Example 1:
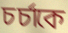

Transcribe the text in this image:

চর্চাকে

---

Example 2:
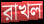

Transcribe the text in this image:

রাখল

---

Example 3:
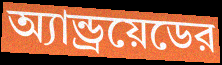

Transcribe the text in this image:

অ্যান্ড্রয়েডের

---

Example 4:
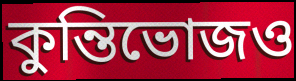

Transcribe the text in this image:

কুন্তিভোজও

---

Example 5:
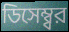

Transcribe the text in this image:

ডিসেম্ব্বর